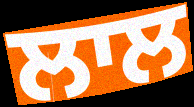
ਲਾਲ